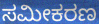
ಸಮೀಕರಣ